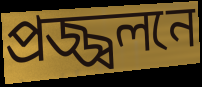
প্রজ্জ্বলনে